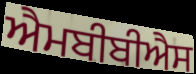
ਐਮਬੀਬੀਐਸ